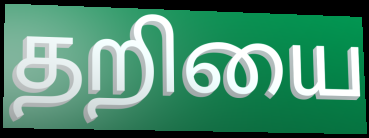
தறியை